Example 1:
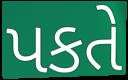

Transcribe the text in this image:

પકતે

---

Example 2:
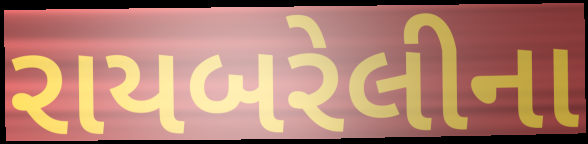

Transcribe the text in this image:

રાયબરેલીના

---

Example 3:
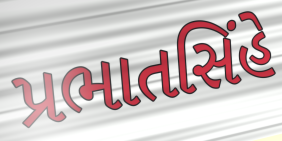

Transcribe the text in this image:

પ્રભાતસિંહે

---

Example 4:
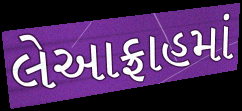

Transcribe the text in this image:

લેઆફ્રાહમાં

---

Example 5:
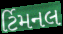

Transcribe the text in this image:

ર્ટિમનલ